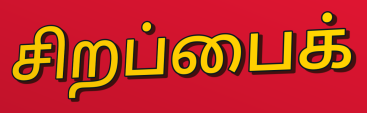
சிறப்பைக்